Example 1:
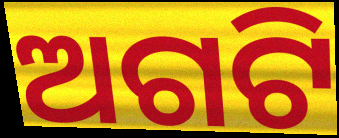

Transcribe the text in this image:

ଅଗଟି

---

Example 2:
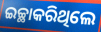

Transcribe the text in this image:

ଇଚ୍ଛାକରିଥିଲେ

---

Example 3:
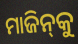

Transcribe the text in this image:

ମାଜିନ୍‌କୁ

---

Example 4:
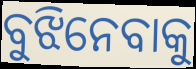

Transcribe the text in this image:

ବୁଝିନେବାକୁ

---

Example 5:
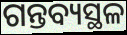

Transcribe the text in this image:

ଗନ୍ତବ୍ୟସ୍ଥଳ